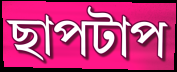
ছাপটাপ